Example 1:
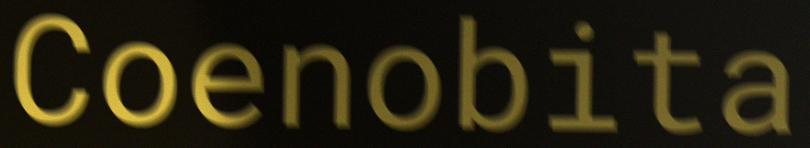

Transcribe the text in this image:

Coenobita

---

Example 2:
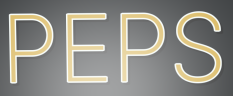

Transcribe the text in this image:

PEPS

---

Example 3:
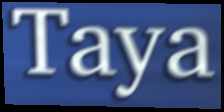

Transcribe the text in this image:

Taya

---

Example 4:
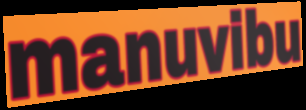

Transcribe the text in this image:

manuvibu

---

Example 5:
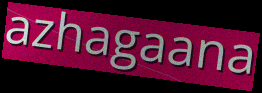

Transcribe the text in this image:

azhagaana